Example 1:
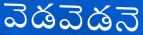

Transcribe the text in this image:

వెడవెడనె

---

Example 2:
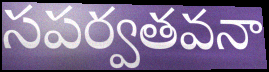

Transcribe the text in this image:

సపర్వతవనా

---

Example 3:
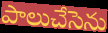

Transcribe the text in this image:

పాలుచేసెను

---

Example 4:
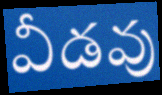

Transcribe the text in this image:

వీడవు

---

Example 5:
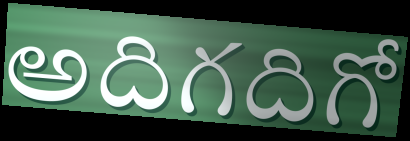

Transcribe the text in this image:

అదిగదిగో